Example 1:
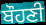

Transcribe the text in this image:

ਬੌਹਣੀ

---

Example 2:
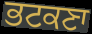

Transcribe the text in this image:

ਭਟਕਣਾ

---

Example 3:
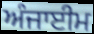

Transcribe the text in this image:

ਅੰਜਾਈਮ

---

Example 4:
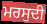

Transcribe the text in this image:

ਮਰਸੁਦੀ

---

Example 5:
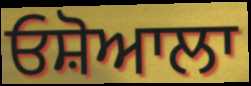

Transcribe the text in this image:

ਓਸ਼ੋਆਲਾ